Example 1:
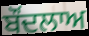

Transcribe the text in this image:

ਬੌਂਦਲਾਅ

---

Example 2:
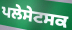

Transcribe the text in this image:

ਪਲੇਸੇਟਸਕ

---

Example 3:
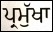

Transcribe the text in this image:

ਪ੍ਰਮੁੱਖਾ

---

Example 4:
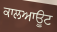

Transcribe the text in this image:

ਕਾਲਆਊਟ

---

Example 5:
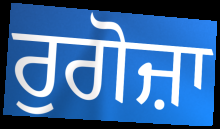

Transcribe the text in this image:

ਰੁਗੋਜ਼ਾ